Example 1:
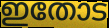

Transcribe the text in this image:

ഇതോട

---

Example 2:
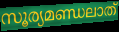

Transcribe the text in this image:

സൂര്യമണ്ഡലാത്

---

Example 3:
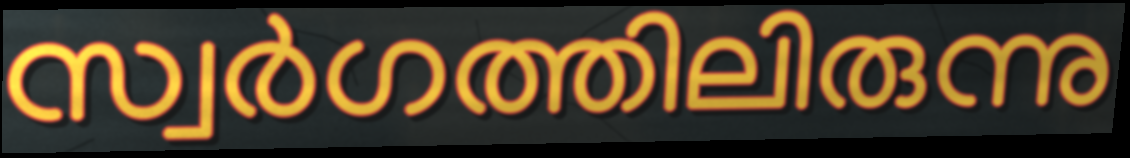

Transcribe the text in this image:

സ്വർഗത്തിലിരുന്നു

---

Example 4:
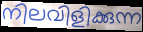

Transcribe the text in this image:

നിലവിളിക്കുന്ന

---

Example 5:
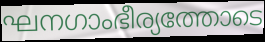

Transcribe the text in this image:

ഘനഗാംഭീര്യത്തോടെ